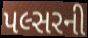
પલ્સરની